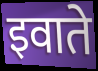
इवाते